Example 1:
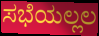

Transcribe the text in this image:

ಸಭೆಯಲ್ಲಲ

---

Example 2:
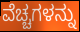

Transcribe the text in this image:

ವೆಚ್ಚಗಳನ್ನು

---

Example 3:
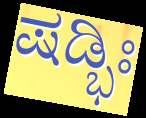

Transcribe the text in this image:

ಷಡ್ಭಿಃ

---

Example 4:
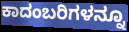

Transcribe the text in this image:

ಕಾದಂಬರಿಗಳನ್ನೂ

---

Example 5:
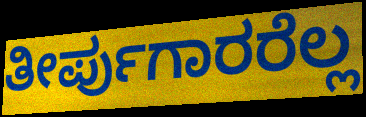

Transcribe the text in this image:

ತೀರ್ಪುಗಾರರೆಲ್ಲ